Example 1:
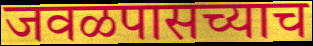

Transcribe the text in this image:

जवळपासच्याच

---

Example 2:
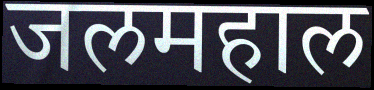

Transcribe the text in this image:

जलमहाल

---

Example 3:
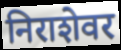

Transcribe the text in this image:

निराशेवर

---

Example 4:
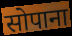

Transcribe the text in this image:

सोपाना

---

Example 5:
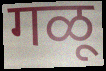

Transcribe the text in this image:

गळू